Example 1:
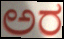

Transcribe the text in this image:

ಅರ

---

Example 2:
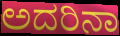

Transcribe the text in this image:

ಅದರಿನಾ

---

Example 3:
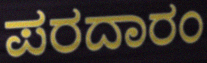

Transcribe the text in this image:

ಪರದಾರಂ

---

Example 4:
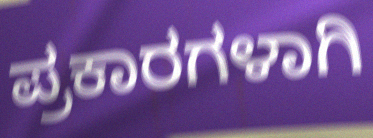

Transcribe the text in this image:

ಪ್ರಕಾರಗಳಾಗಿ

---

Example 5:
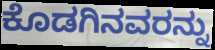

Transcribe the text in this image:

ಕೊಡಗಿನವರನ್ನು